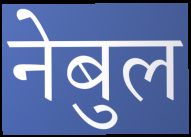
नेबुल